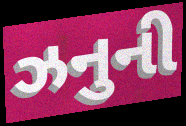
ઝનુની